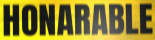
HONARABLE